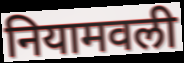
नियामवली